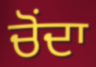
ਚੋਂਦਾ